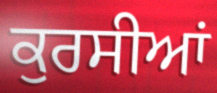
ਕੁਰਸੀਆਂ